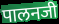
पालनजी